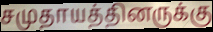
சமுதாயத்தினருக்கு